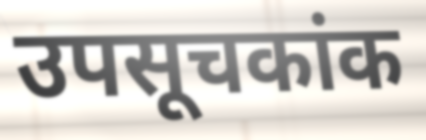
उपसूचकांक